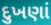
દુખણાં